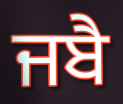
ਜਬੈ